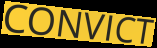
CONVICT